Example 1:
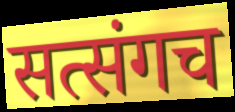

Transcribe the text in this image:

सत्संगच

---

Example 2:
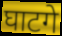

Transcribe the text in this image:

घाटगे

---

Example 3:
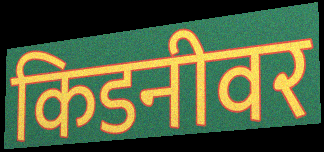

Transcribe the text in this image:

किडनीवर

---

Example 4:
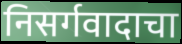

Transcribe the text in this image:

निसर्गवादाचा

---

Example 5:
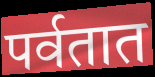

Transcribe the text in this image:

पर्वतात